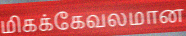
மிகக்கேவலமான